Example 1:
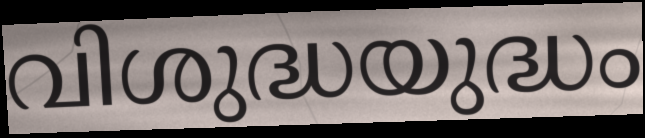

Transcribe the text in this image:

വിശുദ്ധയുദ്ധം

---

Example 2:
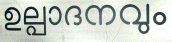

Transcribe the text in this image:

ഉല്പാദനവും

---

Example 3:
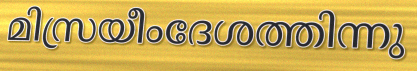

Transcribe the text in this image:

മിസ്രയീംദേശത്തിന്നു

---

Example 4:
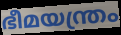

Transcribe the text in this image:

ഭീമയന്ത്രം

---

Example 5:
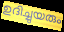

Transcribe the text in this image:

ഉദിച്ചുയരും